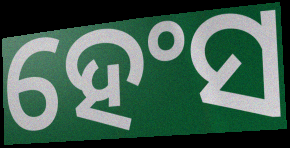
ହେଂସ